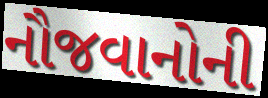
નૌજવાનોની